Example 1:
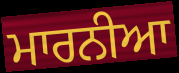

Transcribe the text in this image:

ਮਾਰਨੀਆ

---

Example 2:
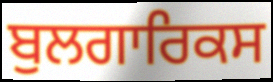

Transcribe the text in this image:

ਬੁਲਗਾਰਿਕਸ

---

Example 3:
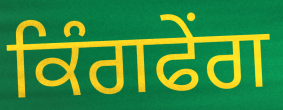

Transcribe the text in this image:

ਕਿੰਗਫੇਂਗ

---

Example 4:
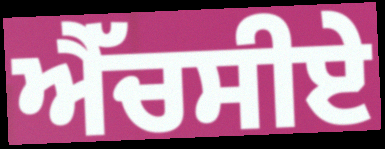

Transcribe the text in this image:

ਐੱਚਸੀਏ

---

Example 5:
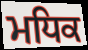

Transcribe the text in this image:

ਮਧਿਕ